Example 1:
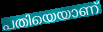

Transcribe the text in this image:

പതിയെയാണ്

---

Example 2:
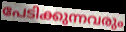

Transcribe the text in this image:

പേടിക്കുന്നവരും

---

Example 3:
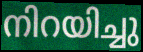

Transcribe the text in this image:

നിറയിച്ചു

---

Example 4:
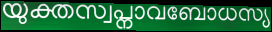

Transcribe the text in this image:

യുക്തസ്വപ്നാവബോധസ്യ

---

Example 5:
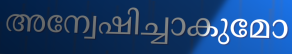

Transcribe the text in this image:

അന്വേഷിച്ചാകുമോ